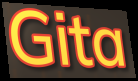
Gita